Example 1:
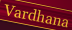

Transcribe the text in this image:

Vardhana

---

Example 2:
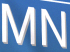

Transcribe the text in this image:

MN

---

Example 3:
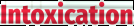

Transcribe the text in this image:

Intoxication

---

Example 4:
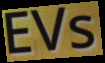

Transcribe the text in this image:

EVs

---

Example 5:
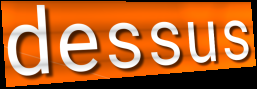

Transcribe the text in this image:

dessus